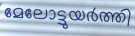
മേലോട്ടുയർത്തി